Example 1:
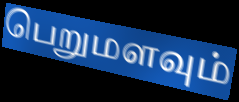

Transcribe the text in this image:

பெறுமளவும்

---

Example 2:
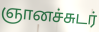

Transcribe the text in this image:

ஞானச்சுடர்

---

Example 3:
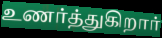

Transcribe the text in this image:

உணர்த்துகிறார்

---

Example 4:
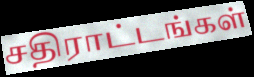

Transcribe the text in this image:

சதிராட்டங்கள்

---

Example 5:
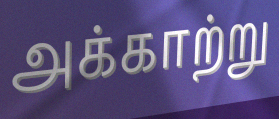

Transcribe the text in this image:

அக்காற்று